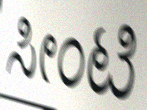
ಸೀಂಟಿ